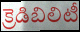
క్రెడిబిలిటీ